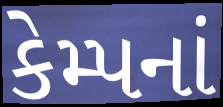
કેમ્પનાં